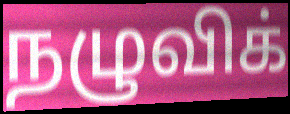
நழுவிக்